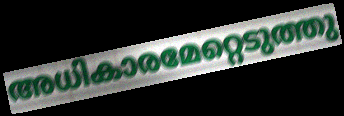
അധികാരമേറ്റെടുത്തു